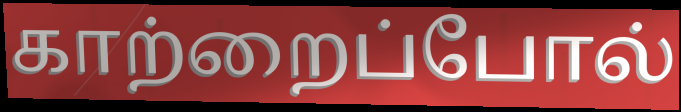
காற்றைப்போல்